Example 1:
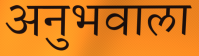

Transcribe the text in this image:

अनुभवाला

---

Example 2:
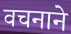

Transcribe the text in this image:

वचनाने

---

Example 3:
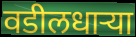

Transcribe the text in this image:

वडीलधाऱ्या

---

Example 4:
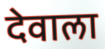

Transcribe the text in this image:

देवाला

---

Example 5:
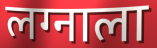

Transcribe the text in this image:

लग्नाला